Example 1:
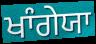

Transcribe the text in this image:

ਖਾੰਗੇਯਾ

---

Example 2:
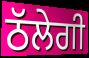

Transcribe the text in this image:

ਠੱਲੇਗੀ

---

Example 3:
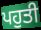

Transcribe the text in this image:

ਪਹੁਤੀ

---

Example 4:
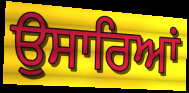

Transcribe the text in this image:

ਉਸਾਰਿਆਂ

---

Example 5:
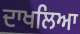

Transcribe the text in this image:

ਦਾਖਲਿਆ